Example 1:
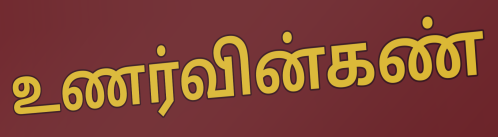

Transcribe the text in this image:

உணர்வின்கண்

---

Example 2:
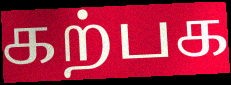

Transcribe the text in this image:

கற்பக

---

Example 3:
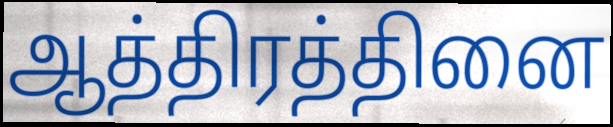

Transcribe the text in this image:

ஆத்திரத்தினை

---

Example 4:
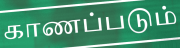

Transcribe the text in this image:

காணப்படும்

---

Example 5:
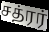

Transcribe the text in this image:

சத்ரர்